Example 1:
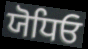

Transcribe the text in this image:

ਯੋਧਿਓ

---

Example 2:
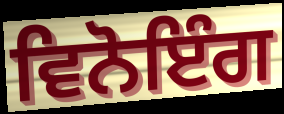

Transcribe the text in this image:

ਵਿਨੋਇੰਗ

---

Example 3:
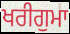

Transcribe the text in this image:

ਖਰੀਗੁਮਾ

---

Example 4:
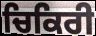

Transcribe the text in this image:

ਚਿਕਿਰੀ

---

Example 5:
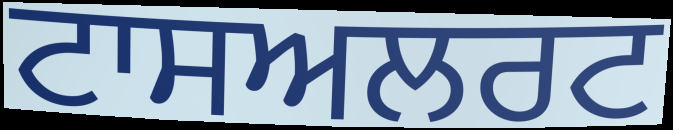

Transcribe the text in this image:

ਟਾਸਅਲਰਟ